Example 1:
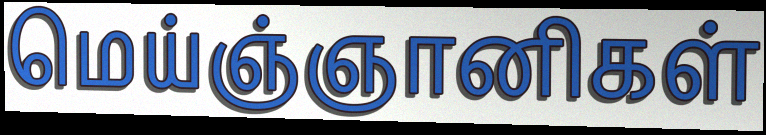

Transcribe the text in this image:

மெய்ஞ்ஞானிகள்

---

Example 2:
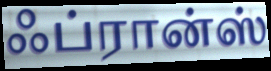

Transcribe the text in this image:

ஃப்ரான்ஸ்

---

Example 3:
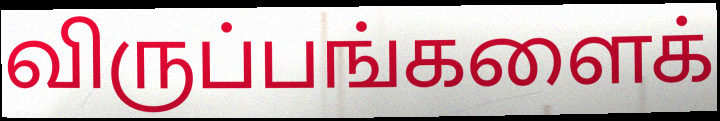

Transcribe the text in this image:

விருப்பங்களைக்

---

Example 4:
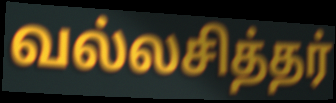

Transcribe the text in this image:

வல்லசித்தர்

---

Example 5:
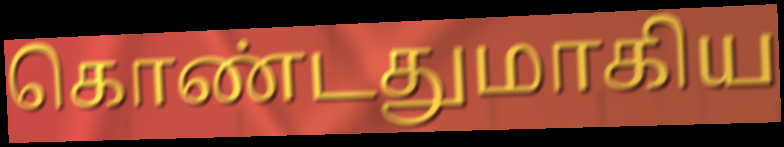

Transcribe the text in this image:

கொண்டதுமாகிய